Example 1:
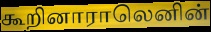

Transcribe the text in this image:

கூறினாராலெனின்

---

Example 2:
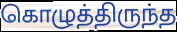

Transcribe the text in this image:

கொழுத்திருந்த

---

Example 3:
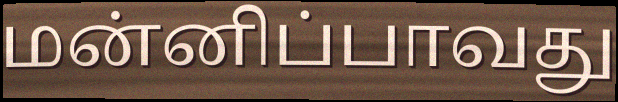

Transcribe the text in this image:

மன்னிப்பாவது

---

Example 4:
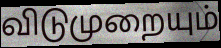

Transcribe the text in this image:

விடுமுறையும்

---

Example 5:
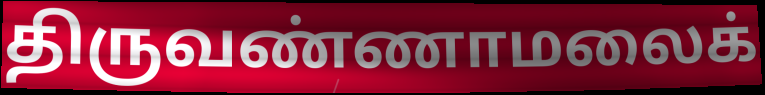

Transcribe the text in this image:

திருவண்ணாமலைக்